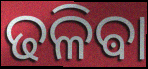
ଢଳିଵା